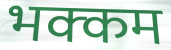
भक्‍कम